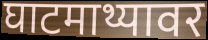
घाटमाथ्यावर